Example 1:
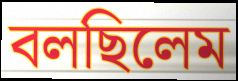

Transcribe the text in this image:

বলছিলেম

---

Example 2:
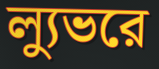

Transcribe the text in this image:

ল্যুভরে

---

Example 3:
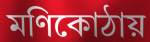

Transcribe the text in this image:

মণিকোঠায়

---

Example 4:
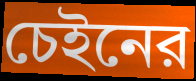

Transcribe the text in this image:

চেইনের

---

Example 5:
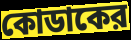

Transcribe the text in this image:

কোডাকের